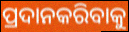
ପ୍ରଦାନକରିବାକୁ